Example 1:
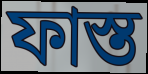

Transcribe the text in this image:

ফাস্ত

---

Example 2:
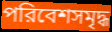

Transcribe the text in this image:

পরিবেশসমৃদ্ধ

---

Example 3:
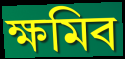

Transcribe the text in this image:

ক্ষমিব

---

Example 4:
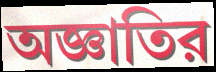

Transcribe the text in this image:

অজ্ঞাতির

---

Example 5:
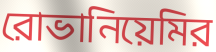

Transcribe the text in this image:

রোভানিয়েমির